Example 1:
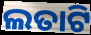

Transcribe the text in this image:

ଲତାଟି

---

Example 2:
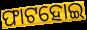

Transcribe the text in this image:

ଫାଟହୋଇ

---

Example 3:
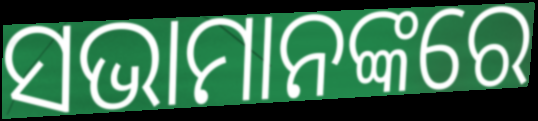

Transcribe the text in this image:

ସଭାମାନଙ୍କରେ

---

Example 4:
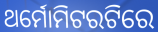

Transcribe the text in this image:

ଥର୍ମୋମିଟରଟିରେ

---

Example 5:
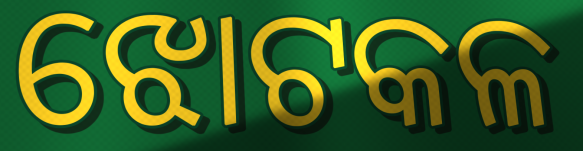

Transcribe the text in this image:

ଝୋଟକଳ